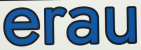
erau